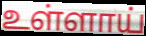
உள்ளாய்